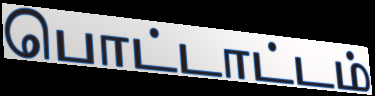
பொட்டாட்டம்